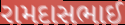
રામદાસભાઈ